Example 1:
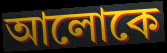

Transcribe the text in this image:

আলোকে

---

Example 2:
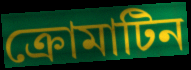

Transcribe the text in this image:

ক্রোমাটিন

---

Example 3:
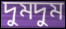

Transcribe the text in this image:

দুমদুম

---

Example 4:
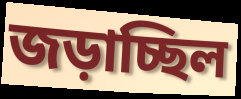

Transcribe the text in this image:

জড়াচ্ছিল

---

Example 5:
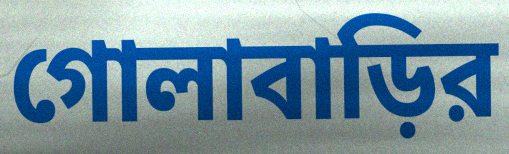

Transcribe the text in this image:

গোলাবাড়ির